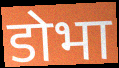
डोभा